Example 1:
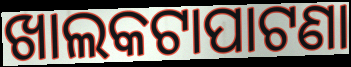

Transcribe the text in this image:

ଖାଲକଟାପାଟଣା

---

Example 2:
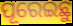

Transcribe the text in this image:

ପୂରେଇଛୁ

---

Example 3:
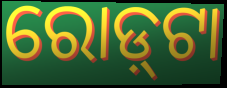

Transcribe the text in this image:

ରୋଡ଼୍‌ଟା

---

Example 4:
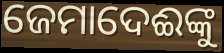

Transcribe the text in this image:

ଜେମାଦେଈଙ୍କୁ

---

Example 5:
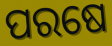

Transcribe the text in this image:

ପରଷେ